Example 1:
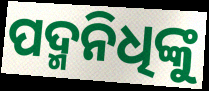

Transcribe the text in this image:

ପଦ୍ମନିଧିଙ୍କୁ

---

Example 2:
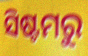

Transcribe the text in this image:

ସିଷ୍ଟମରୁ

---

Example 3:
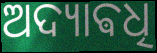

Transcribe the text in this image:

ଅଦ୍ୟାଵଧି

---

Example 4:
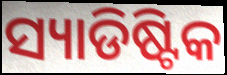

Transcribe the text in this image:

ସ୍ୟାଡିଷ୍ଟିକ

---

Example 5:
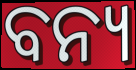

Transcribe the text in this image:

ବନ୍ୟ